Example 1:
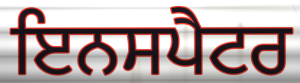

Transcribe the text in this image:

ਇਨਸਪੈਟਰ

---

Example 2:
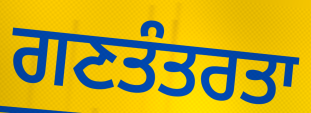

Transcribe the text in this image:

ਗਣਤੰਤਰਤਾ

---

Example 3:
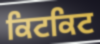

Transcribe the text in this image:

ਕਿਟਕਿਟ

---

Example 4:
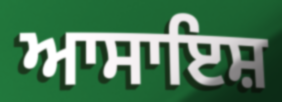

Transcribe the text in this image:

ਆਸਾਇਸ਼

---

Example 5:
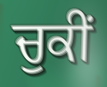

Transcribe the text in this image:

ਚੁਕੀਂ